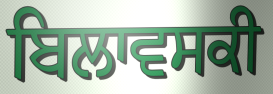
ਬਿਲਾਵਸਕੀ